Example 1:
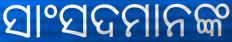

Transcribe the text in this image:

ସାଂସଦମାନଙ୍କ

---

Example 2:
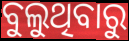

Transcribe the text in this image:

ବୁଲୁଥିବାରୁ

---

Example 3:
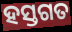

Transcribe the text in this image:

ହସ୍ତଗତ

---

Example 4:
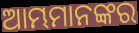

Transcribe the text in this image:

ଆମ୍ଭମାନଙ୍କର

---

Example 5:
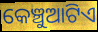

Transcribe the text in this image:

କେଞ୍ଚୁଆଟିଏ